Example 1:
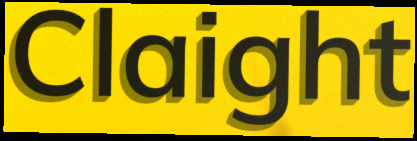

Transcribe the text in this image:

Claight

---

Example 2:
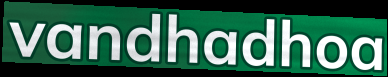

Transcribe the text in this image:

vandhadhoa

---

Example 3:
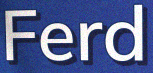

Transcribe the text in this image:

Ferd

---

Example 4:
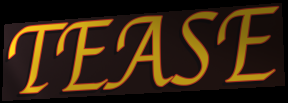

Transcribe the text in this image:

TEASE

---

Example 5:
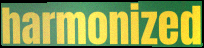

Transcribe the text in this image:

harmonized